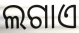
ଲଗାଏ